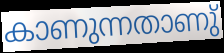
കാണുന്നതാണു്